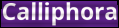
Calliphora